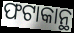
ଫଟାକାନ୍ଥ